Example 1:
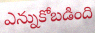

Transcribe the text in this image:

ఎన్నుకోబడింది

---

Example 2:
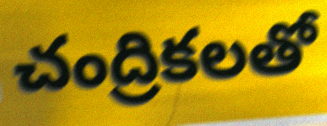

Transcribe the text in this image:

చంద్రికలతో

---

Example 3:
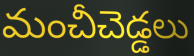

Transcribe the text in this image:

మంచీచెడ్డలు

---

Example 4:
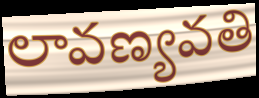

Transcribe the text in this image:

లావణ్యవతి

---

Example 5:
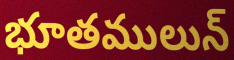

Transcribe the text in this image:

భూతములున్